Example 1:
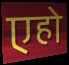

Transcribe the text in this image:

एहो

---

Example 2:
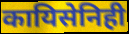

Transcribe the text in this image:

कायिसेनिही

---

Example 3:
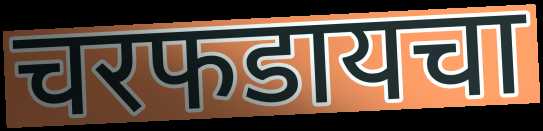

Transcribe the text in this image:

चरफडायचा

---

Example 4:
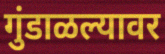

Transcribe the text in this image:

गुंडाळल्यावर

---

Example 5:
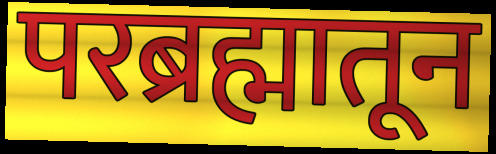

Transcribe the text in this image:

परब्रह्मातून